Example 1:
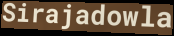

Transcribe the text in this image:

Sirajadowla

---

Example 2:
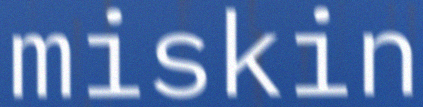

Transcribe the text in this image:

miskin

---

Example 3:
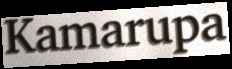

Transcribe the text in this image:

Kamarupa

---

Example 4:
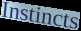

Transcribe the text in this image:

Instincts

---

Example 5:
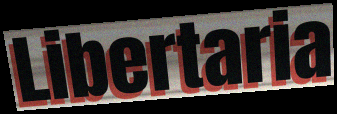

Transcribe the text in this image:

Libertaria